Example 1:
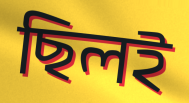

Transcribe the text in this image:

ছিলই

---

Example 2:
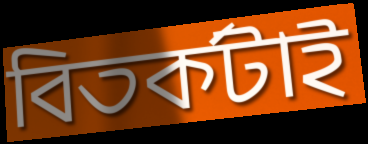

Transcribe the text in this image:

বিতর্কটাই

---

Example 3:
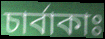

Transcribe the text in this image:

চার্বাকাঃ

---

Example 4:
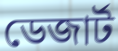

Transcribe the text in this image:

ডেজার্ট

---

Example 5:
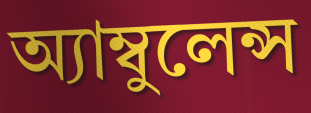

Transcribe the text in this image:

অ্যাম্বুলেন্স